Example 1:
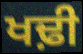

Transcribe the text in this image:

ਖਢ਼ੀ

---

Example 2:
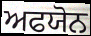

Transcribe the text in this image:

ਅਫਯੋਨ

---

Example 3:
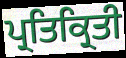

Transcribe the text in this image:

ਪ੍ਰਤਿਕ੍ਰਿਤੀ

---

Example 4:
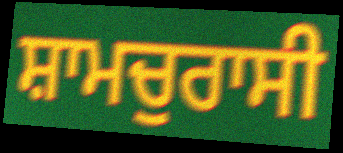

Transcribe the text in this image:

ਸ਼ਾਮਚੁਰਾਸੀ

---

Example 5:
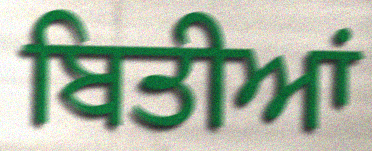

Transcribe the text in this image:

ਬਿਤੀਆਂ